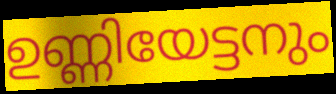
ഉണ്ണിയേട്ടനും